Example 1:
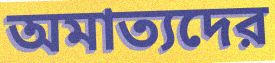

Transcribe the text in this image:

অমাত্যদের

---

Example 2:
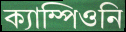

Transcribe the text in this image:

ক্যাম্পিওনি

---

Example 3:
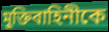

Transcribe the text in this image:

মুক্তিবাহিনীকে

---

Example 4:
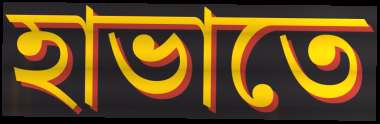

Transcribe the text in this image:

হাভাতে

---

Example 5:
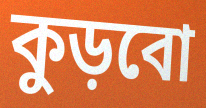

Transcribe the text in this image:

কুড়বো